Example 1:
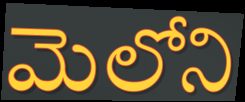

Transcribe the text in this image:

మెలోని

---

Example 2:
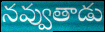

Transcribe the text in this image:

నవ్వుతాడు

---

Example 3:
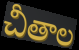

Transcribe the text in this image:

చీతాల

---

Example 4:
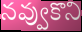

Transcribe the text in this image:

నవ్వుకొని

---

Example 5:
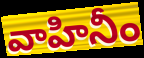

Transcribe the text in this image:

వాహినీం